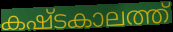
കഷ്ടകാലത്ത്